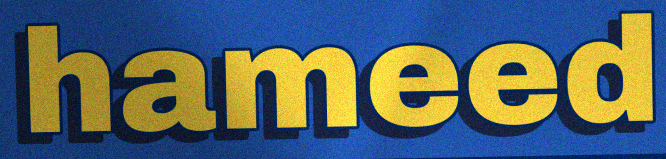
hameed